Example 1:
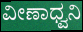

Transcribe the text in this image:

ವೀಣಾಧ್ವನಿ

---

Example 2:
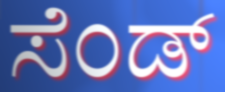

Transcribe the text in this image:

ಸೆಂಡ್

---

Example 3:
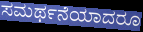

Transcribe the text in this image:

ಸಮರ್ಥನೆಯಾದರೂ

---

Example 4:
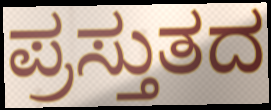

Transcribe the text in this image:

ಪ್ರಸ್ತುತದ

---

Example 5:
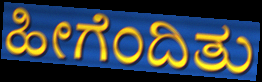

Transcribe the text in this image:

ಹೀಗೆಂದಿತು